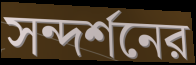
সন্দর্শনের